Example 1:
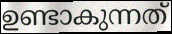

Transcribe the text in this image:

ഉണ്ടാകുന്നത്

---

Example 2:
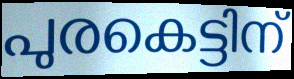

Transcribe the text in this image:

പുരകെട്ടിന്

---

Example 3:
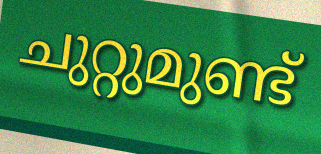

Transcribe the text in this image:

ചുറ്റുമുണ്ട്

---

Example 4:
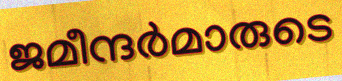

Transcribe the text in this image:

ജമീന്ദർമാരുടെ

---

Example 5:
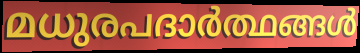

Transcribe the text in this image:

മധുരപദാർത്ഥങ്ങൾ